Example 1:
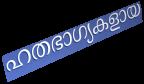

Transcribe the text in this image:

ഹതഭാഗ്യകളായ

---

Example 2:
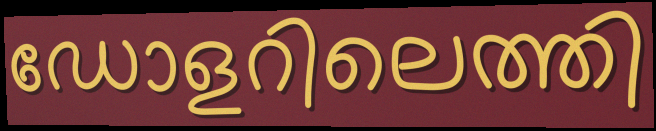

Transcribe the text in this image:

ഡോളറിലെത്തി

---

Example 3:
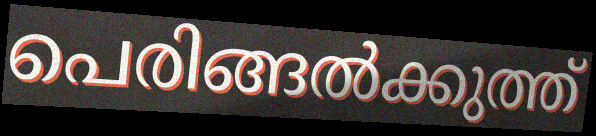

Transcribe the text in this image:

പെരിങ്ങൽക്കുത്ത്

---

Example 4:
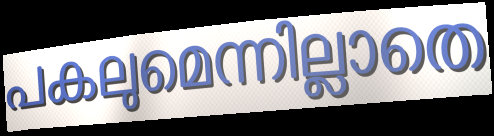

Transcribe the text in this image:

പകലുമെന്നില്ലാതെ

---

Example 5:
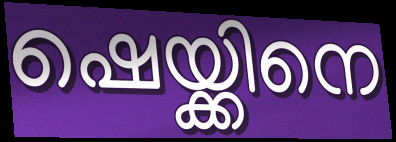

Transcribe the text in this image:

ഷെയ്ക്കിനെ